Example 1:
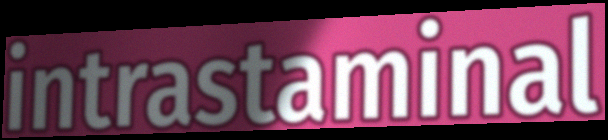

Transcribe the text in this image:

intrastaminal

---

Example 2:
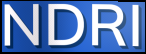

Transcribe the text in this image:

NDRI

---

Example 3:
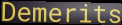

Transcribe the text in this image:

Demerits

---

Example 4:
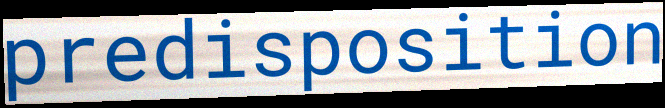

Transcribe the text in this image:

predisposition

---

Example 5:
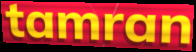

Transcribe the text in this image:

tamran